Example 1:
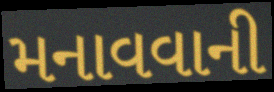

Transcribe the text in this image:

મનાવવાની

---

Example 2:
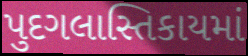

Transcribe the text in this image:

પુદગલાસ્તિકાયમાં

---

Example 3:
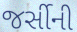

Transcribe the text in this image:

જર્સીની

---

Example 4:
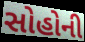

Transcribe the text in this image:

સોહોની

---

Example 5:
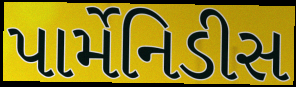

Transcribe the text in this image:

પાર્મેનિડીસ